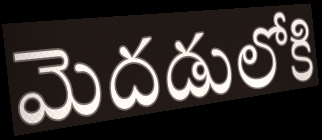
మెదడులోకి